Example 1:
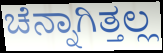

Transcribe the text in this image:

ಚೆನ್ನಾಗಿತ್ತಲ್ಲ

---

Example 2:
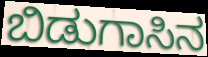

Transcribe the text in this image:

ಬಿಡುಗಾಸಿನ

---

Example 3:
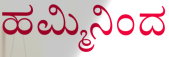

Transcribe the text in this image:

ಹಮ್ಮಿನಿಂದ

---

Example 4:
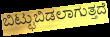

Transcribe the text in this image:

ಬಿಟ್ಟುಬಿಡಲಾಗುತ್ತದೆ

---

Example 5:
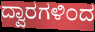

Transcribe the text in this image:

ದ್ವಾರಗಳಿಂದ